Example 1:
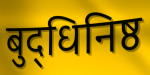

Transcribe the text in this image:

बुद्धिनिष्ठ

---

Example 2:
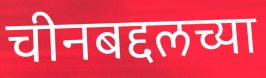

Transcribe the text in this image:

चीनबद्दलच्या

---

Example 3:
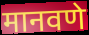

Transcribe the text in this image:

मानवणे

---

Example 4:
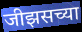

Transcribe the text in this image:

जीझसच्या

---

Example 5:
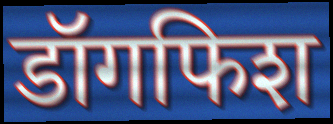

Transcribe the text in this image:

डॉगफिश